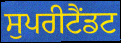
ਸੁਪਰੀਟੈਂਡਟ